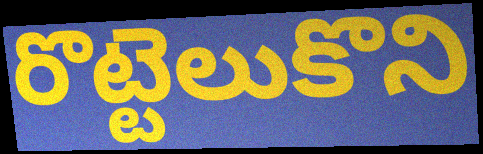
రొట్టెలుకొని